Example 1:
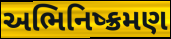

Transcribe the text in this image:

અભિનિષ્ક્રમણ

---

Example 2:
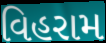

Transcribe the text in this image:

વિહરામ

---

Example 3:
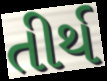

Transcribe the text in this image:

તીર્થ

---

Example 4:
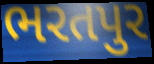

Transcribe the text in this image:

ભરતપુર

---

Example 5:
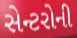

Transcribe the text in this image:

સેન્ટરોની